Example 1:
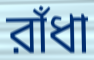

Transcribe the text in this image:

রাঁধা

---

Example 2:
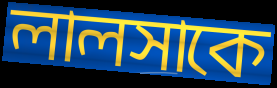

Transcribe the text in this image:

লালসাকে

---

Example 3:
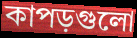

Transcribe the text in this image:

কাপড়গুলো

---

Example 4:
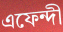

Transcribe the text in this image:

এফেন্দী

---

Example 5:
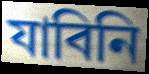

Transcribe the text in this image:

যাবিনি